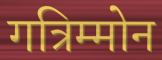
गत्रिम्मोन